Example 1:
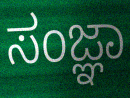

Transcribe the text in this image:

ಸಂಜ್ಞಾ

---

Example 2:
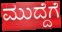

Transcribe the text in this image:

ಮುದ್ದೆಗೆ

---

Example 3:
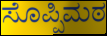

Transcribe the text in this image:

ಸೊಪ್ಪಿಮಠ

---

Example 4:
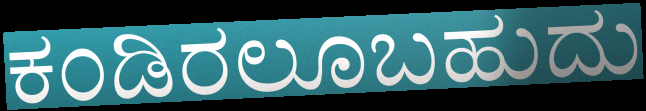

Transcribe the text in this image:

ಕಂಡಿರಲೂಬಹುದು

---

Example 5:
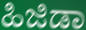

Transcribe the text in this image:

ಹಿಜಿಡಾ